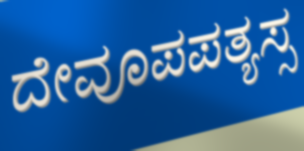
ದೇವೂಪಪತ್ಯಸ್ಸ